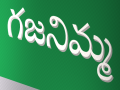
గజనిమ్మ